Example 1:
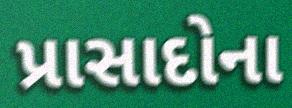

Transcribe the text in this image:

પ્રાસાદોના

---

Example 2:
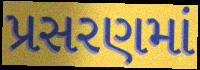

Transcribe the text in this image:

પ્રસરણમાં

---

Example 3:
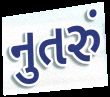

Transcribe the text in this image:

નુતરું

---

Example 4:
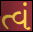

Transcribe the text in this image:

ત્વં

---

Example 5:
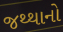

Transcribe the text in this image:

જથ્થાનો